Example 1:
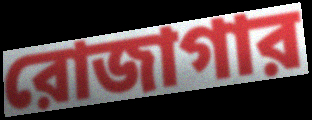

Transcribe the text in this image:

রোজাগার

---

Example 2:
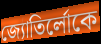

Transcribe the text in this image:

জ্যোতির্লোকে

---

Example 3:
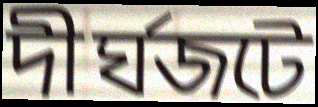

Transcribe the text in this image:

দীর্ঘজটে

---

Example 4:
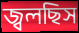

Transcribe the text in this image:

জ্বলছিস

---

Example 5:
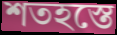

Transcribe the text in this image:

শতহস্তে